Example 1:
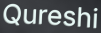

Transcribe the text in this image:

Qureshi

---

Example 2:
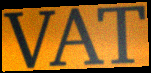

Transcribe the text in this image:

VAT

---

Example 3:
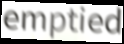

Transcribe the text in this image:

emptied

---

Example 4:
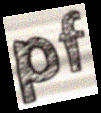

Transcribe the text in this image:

pf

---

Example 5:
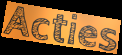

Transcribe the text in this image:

Acties